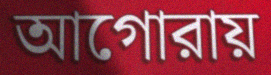
আগোরায়